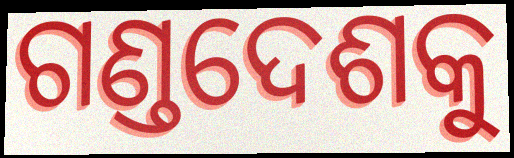
ଗଣ୍ଡଦେଶକୁ